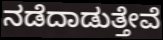
ನಡೆದಾಡುತ್ತೇವೆ